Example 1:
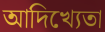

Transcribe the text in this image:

আদিখ্যেতা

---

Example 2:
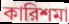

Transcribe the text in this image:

কারিশমা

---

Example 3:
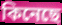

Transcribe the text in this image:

কিনেছে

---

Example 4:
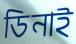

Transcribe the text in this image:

ডিনাই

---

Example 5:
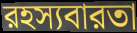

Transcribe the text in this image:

রহস্যবারতা